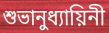
শুভানুধ্যায়িনী